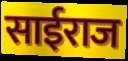
साईराज